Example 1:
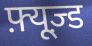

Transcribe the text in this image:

फ़्यूज़्ड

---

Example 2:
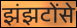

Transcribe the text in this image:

झंझटोंसे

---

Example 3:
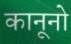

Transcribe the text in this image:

कानूनो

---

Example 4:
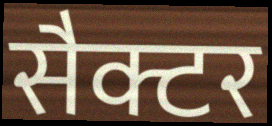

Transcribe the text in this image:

सैक्टर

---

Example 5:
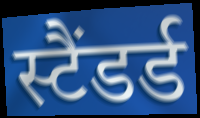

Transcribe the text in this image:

स्‍टैंडर्ड